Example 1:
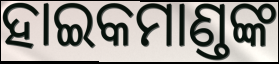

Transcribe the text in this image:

ହାଇକମାଣ୍ଡଙ୍କ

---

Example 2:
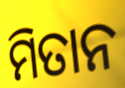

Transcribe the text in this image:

ମିତାନ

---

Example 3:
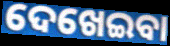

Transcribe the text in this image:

ଦେଖେଇବା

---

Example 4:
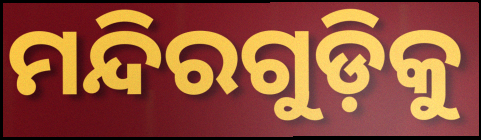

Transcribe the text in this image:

ମନ୍ଦିରଗୁଡ଼ିକୁ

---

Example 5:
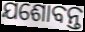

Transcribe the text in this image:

ଯଶୋବନ୍ତ